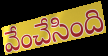
వేంచేసింది